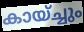
കായ്ച്ചും